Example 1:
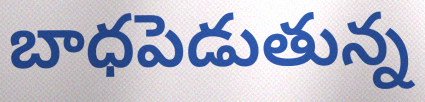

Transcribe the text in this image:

బాధపెడుతున్న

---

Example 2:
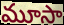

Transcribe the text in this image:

మూసా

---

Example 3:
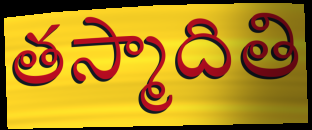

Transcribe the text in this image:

తస్మాదితి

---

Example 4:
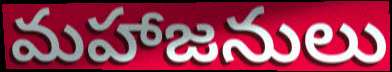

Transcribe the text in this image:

మహాజనులు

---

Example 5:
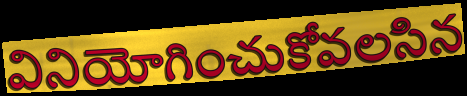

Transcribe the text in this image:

వినియోగించుకోవలసిన